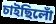
চাইছিলোঁ